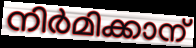
നിർമിക്കാന്